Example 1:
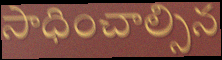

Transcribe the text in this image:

సాధించాల్సిన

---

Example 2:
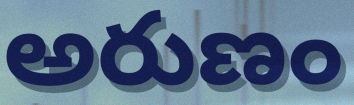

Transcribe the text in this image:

అరుణం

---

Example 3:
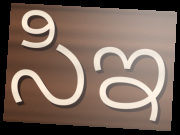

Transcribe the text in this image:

సిఇ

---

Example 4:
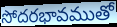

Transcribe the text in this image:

సోదరభావముతో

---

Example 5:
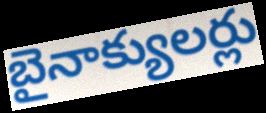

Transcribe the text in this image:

బైనాక్యులర్లు